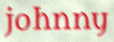
johnny